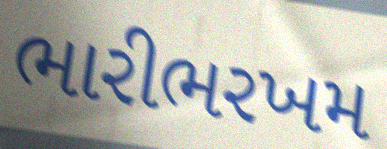
ભારીભરખમ